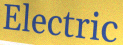
Electric